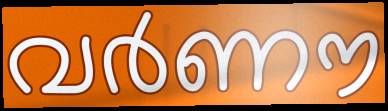
വർണൗ